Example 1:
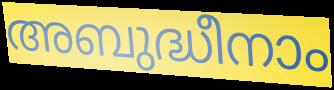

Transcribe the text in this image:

അബുദ്ധീനാം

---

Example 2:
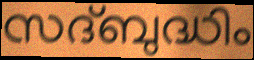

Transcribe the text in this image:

സദ്ബുദ്ധിം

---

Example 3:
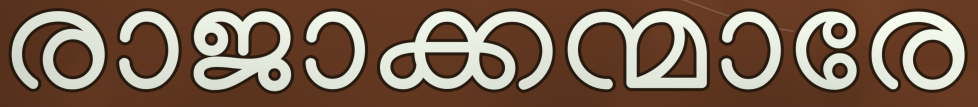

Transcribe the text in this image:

രാജാക്കന്മാരേ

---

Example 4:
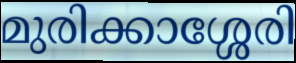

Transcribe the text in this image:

മുരിക്കാശ്ശേരി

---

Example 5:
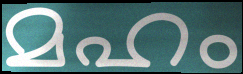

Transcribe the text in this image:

മഹം